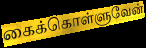
கைக்கொள்ளுவேன்